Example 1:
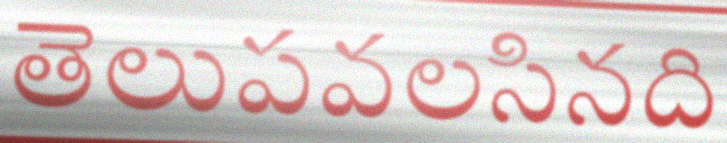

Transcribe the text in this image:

తెలుపవలసినది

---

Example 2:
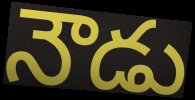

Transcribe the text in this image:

నౌడు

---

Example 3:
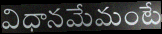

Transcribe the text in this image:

విధానమేమంటే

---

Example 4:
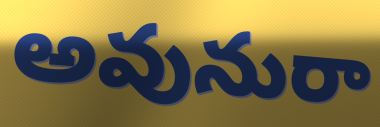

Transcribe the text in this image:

అవునురా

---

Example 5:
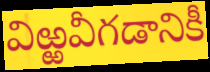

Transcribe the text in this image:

విఱ్ఱవీగడానికీ